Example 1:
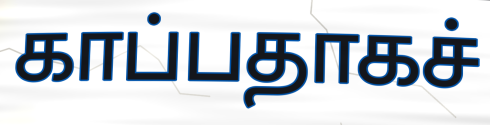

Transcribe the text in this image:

காப்பதாகச்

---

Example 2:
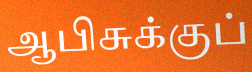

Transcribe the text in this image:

ஆபிசுக்குப்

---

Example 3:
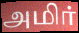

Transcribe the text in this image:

அமிர்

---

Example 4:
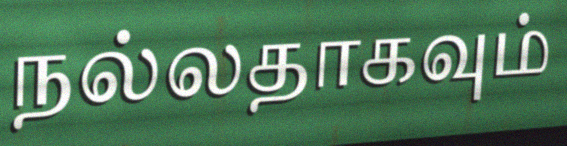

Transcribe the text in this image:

நல்லதாகவும்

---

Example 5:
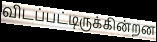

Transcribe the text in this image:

விடப்பட்டிருக்கின்றன